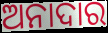
ଅନାଦାର